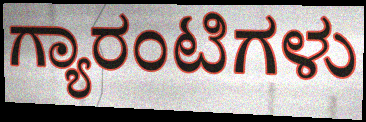
ಗ್ಯಾರಂಟಿಗಳು